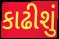
કાઢીશું